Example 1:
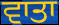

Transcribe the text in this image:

ਵਾਤਾ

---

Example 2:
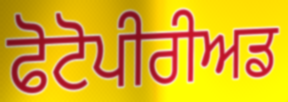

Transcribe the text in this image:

ਫੋਟੋਪੀਰੀਅਡ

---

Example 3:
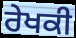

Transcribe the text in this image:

ਰੇਖਕੀ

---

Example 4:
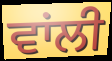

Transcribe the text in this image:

ਵਾਂਲੀ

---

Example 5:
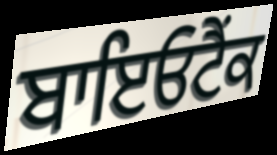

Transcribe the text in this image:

ਬਾਇਓਟੈਂਕ